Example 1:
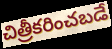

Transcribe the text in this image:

చిత్రీకరించబడే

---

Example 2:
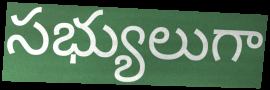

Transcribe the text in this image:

సభ్యులుగా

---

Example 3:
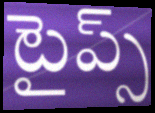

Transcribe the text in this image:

టైప్స్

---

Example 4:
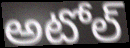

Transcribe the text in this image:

అటోల్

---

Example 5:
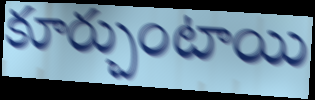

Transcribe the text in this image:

కూర్చుంటాయి